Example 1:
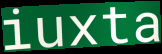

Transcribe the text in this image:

iuxta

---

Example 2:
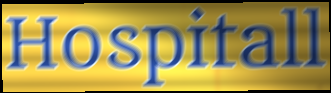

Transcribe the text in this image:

Hospitall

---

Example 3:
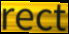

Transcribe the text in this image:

rect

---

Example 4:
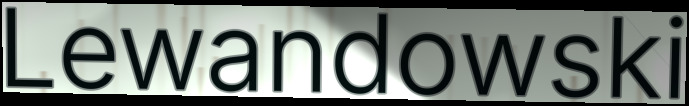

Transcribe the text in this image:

Lewandowski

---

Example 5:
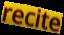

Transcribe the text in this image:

recite